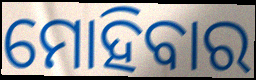
ମୋହିବାର